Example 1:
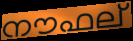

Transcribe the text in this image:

നൗഫല്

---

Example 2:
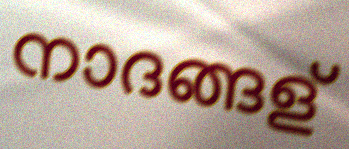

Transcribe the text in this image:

നാദങ്ങള്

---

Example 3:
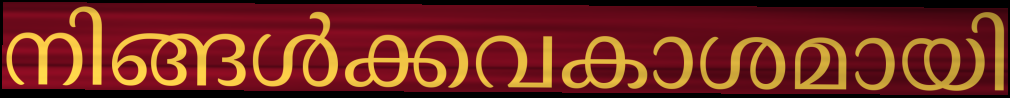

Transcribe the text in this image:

നിങ്ങൾക്കവകാശമായി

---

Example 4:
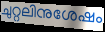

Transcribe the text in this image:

ചുറ്റലിനുശേഷം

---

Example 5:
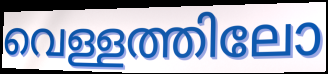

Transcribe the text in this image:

വെള്ളത്തിലോ